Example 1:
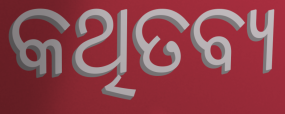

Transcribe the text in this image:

କଥିତବ୍ୟ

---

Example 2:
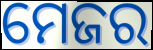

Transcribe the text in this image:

ମେଜର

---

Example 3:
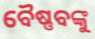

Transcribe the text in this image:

ବୈଷ୍ଣବଙ୍କୁ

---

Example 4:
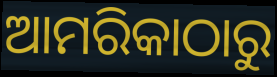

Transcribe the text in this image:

ଆମରିକାଠାରୁ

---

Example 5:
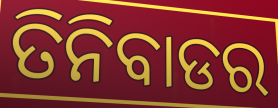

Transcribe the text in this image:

ତିନିବାଡର